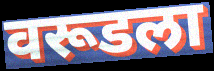
वरूडला